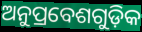
ଅନୁପ୍ରବେଶଗୁଡ଼ିକ